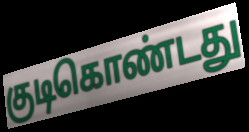
குடிகொண்டது